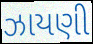
ઝાયણી